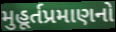
મુહૂર્તપ્રમાણનો